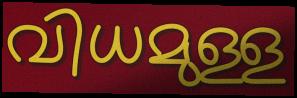
വിധമുള്ള